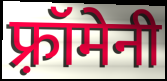
फ़्रॉमेनी